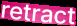
retract